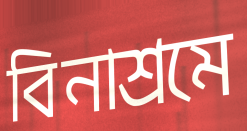
বিনাশ্রমে